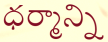
ధర్మాన్ని